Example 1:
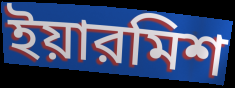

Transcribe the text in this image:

ইয়ারমিশ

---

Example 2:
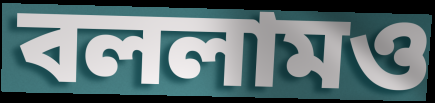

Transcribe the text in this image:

বললামও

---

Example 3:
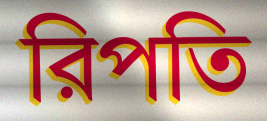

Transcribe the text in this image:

রিপতি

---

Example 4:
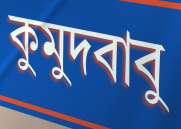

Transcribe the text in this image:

কুমুদবাবু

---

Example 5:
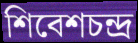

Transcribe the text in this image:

শিবেশচন্দ্র